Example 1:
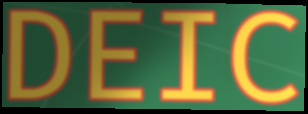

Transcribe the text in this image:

DEIC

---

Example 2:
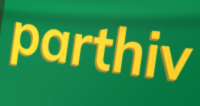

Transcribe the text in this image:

parthiv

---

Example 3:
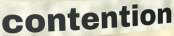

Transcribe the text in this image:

contention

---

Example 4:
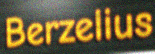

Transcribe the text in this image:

Berzelius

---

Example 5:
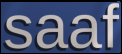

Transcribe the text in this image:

saaf